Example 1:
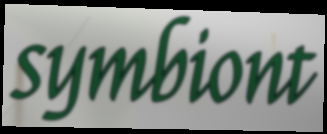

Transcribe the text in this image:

symbiont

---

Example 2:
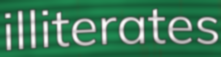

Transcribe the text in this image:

illiterates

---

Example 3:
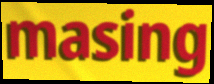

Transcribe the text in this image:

masing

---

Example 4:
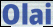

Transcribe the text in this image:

Olai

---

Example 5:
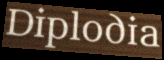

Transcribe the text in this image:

Diplodia